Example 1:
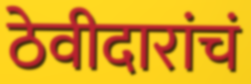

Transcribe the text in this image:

ठेवीदारांचं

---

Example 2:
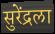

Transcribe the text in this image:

सुरेंद्रला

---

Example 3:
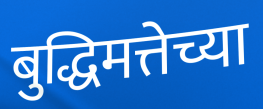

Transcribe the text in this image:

बुद्धिमत्तेच्या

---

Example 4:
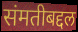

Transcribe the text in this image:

संमतीबद्दल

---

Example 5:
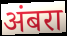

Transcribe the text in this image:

अंबरा